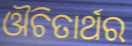
ଔଚିତାର୍ଥର